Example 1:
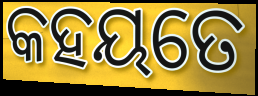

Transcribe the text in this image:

କହୟତେ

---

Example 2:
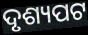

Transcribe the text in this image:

ଦୃଶ୍ୟପଟ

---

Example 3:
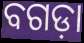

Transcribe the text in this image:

ବଗଡ଼ା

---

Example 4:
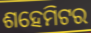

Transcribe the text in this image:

ଶହେମିଟର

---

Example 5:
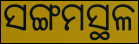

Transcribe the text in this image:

ସଙ୍ଗମସ୍ଥଳ